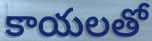
కాయలతో